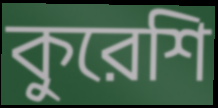
কুরেশি